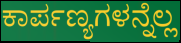
ಕಾರ್ಪಣ್ಯಗಳನ್ನೆಲ್ಲ